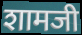
शामजी